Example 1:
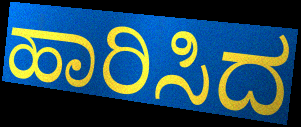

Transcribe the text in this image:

ಹಾರಿಸಿದ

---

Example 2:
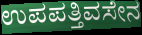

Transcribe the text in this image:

ಉಪಪತ್ತಿವಸೇನ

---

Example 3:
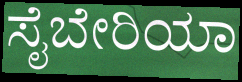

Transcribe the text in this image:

ಸೈಬೇರಿಯಾ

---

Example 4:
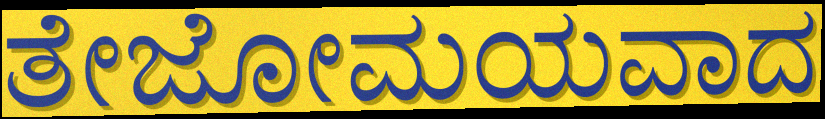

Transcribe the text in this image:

ತೇಜೋಮಯವಾದ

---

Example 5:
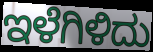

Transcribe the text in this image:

ಇಳೆಗಿಳಿದು